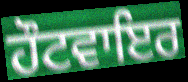
ਹੌਟਵਾਇਰ